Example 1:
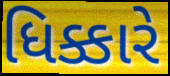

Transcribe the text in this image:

ધિક્કારે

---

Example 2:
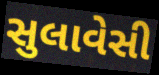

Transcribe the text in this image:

સુલાવેસી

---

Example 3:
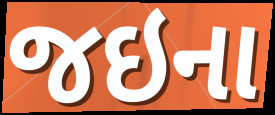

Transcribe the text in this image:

જઇના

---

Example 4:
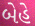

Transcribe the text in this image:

બેહે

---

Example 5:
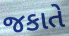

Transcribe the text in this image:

જકાતે